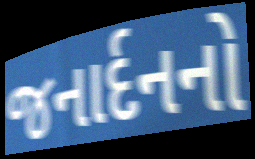
જનાર્દનનો